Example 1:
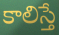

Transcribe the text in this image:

కాలిస్తే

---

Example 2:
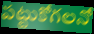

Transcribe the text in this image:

పట్టుకోగలనో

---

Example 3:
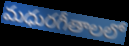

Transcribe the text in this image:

మధురగీతాలలో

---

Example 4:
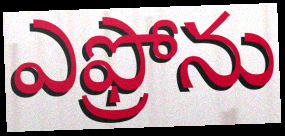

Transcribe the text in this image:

ఎఫ్రోను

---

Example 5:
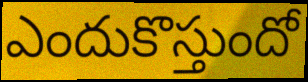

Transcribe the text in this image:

ఎందుకొస్తుందో